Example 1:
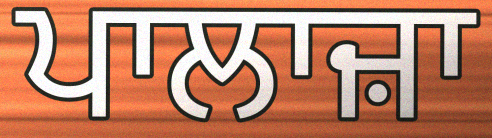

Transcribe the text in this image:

ਪਾਲਾਜ਼ਾ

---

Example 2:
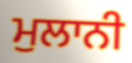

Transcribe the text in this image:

ਮੁਲਾਨੀ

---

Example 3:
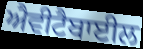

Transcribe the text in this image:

ਐਵੀਟੈਬਾਈਲ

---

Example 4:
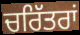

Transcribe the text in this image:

ਚਰਿੱਤਰਾਂ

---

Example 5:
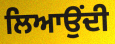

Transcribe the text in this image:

ਲਿਆਉਂਦੀ